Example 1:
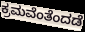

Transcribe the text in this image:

ಕ್ರಮವೆಂತೆಂದಡೆ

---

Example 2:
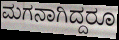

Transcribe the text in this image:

ಮಗನಾಗಿದ್ದರೂ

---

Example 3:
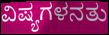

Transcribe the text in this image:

ವಿಷ್ಯಗಳನತು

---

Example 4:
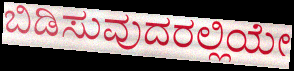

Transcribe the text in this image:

ಬಿಡಿಸುವುದರಲ್ಲಿಯೇ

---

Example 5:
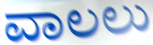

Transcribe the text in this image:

ವಾಲಲು